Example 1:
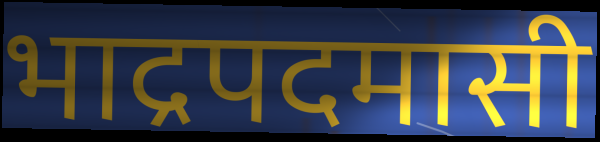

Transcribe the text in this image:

भाद्रपदमासी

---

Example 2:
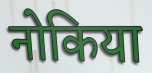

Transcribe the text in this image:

नोकिया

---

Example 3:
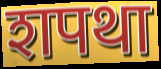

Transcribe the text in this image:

शपथा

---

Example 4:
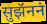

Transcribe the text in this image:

सुझॅननं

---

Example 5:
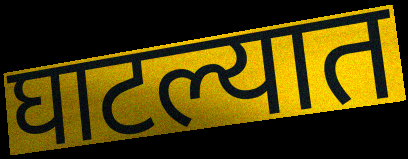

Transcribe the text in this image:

घाटल्यात